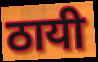
ठायी